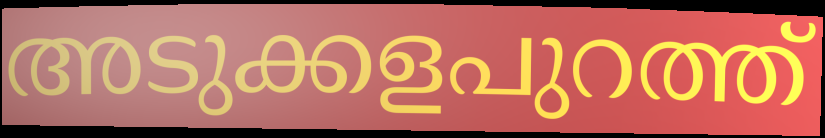
അടുക്കളപുറത്ത്